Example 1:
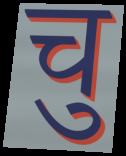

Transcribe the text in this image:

चु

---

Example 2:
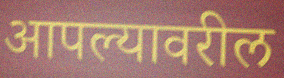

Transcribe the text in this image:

आपल्यावरील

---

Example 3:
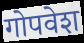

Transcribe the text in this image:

गोपवेश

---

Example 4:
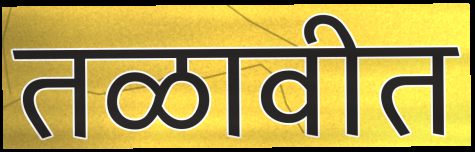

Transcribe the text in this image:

तळावीत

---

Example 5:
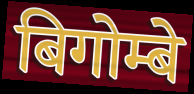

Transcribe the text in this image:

बिगोम्बे